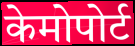
केमोपोर्ट